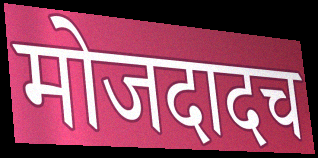
मोजदादच